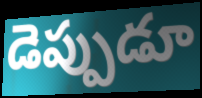
డెప్పుడూ